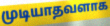
முடியாதவளாக